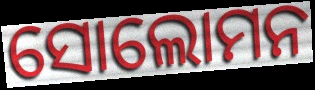
ସୋଲୋମନ